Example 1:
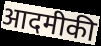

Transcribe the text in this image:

आदमीकी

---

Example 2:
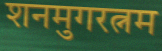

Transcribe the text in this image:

शनमुगरत्नम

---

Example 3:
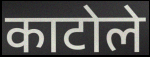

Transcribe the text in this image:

काटोले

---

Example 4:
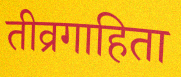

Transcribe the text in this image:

तीव्रगाहिता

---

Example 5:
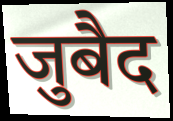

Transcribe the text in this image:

जुबैद